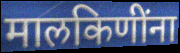
मालकिणींना